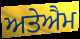
ਅਤੇਐਮ